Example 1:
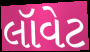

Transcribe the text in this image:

લૉવેટ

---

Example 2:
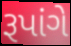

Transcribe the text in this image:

રૂપાંગે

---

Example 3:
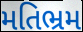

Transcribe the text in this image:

મતિભ્રમ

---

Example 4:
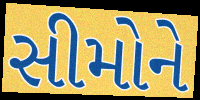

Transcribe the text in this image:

સીમોને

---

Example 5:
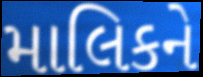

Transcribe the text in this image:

માલિકને